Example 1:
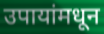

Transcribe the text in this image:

उपायांमधून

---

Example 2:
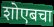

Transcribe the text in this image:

शोएबचा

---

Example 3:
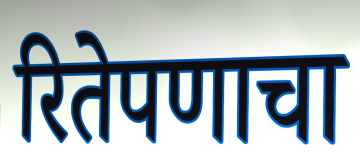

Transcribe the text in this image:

रितेपणाचा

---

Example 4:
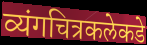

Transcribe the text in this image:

व्यंगचित्रकलेकडे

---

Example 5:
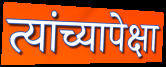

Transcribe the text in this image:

त्यांच्यापेक्षा